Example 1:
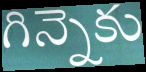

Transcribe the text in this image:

గిన్నెకు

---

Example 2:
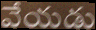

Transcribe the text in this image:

వేయడు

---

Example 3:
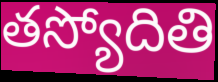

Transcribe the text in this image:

తస్యోదితి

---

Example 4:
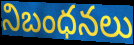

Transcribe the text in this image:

నిబంధనలు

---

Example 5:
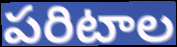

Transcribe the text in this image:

పరిటాల